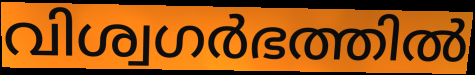
വിശ്വഗർഭത്തിൽ